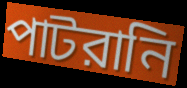
পাটরানি